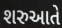
શરુઆતે